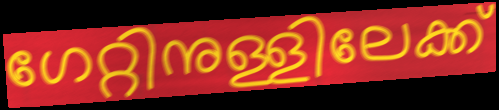
ഗേറ്റിനുള്ളിലേക്ക്